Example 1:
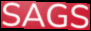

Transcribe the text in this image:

SAGS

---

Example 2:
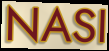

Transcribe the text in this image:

NASI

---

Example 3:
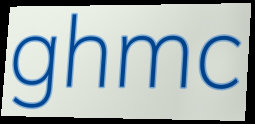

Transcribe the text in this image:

ghmc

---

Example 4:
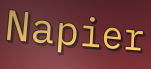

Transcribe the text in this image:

Napier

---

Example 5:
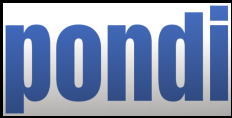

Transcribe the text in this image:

pondi